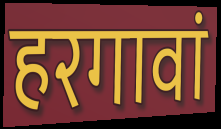
हरगावां